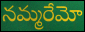
నమ్మరేమో